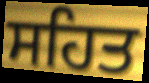
ਸਹਿਤ